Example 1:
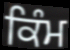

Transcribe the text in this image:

ਕਿੰਮ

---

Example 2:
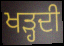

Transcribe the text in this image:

ਖੜ੍ਹਦੀ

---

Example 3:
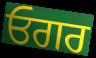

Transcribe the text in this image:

ਓਗਰ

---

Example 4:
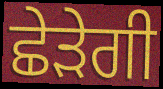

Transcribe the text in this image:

ਛੇੜੇਗੀ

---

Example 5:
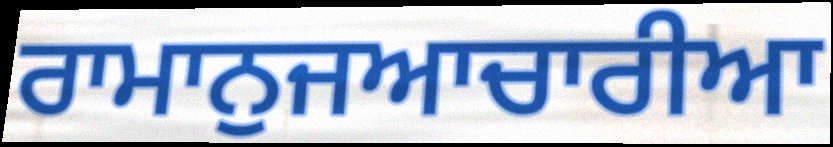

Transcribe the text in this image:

ਰਾਮਾਨੁਜਆਚਾਰੀਆ